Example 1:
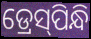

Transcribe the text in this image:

ଡ୍ରେସ୍‌ପିନ୍ଧି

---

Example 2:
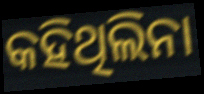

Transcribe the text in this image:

କହିଥିଲିନା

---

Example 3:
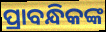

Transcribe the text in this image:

ପ୍ରାବନ୍ଧିକଙ୍କ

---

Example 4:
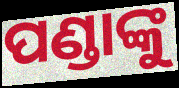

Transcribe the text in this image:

ପଣ୍ଡାଙ୍କୁ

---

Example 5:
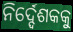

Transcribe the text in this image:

ନିର୍ଦ୍ଦେଶକକୁ